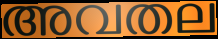
അവതല